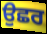
ਉਛਰ